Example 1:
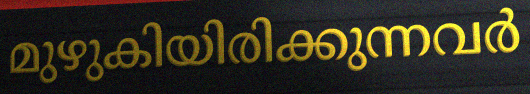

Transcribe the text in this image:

മുഴുകിയിരിക്കുന്നവർ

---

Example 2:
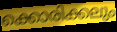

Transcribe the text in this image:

ക്കൊരിക്കലും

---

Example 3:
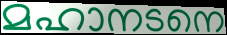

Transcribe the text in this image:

മഹാനടനെ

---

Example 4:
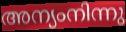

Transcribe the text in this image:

അന്യംനിന്നു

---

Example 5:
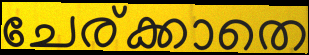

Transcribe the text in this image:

ചേര്ക്കാതെ